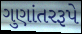
ગુણાંતરરૂપે